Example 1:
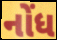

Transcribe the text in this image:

નોંધ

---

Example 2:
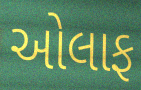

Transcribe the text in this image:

ઓલાફ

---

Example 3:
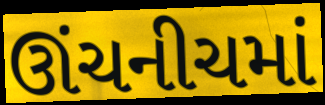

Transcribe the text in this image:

ઊંચનીચમાં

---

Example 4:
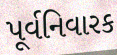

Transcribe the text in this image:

પૂર્વનિવારક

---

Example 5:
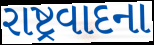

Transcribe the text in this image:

રાષ્ટ્રવાદના